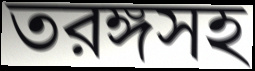
তরঙ্গসহ